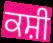
ਕਸ਼ੀ